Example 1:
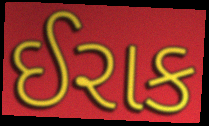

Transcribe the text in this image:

ઈરાક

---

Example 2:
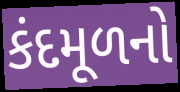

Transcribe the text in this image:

કંદમૂળનો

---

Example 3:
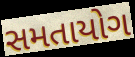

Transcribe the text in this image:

સમતાયોગ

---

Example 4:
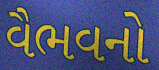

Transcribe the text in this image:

વૈભવનો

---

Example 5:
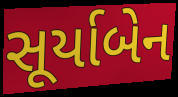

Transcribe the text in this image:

સૂર્યાબેન